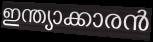
ഇന്ത്യാക്കാരൻ